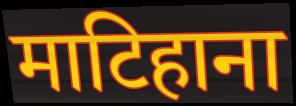
माटिहाना